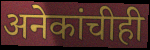
अनेकांचीही